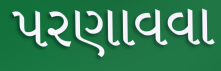
પરણાવવા